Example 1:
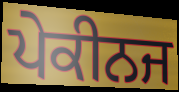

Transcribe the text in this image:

ਪੇਕੀਨਜ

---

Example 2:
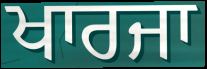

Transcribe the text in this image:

ਖਾਰਜਾ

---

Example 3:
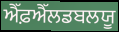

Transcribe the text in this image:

ਐੱਫ਼ਐੱਲਡਬਲਯੂ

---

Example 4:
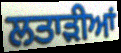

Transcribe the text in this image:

ਲਤਾੜੀਆਂ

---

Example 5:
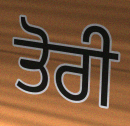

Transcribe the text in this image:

ਤੋਰੀ